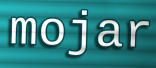
mojar